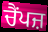
ਚੈਂਪਜ਼